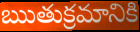
ఋతుక్రమానికి